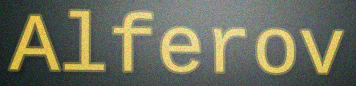
Alferov